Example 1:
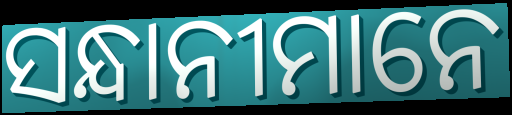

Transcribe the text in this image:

ସନ୍ଧାନୀମାନେ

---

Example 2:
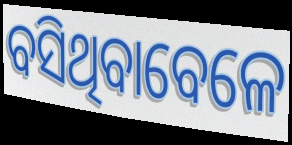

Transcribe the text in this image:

ବସିଥିବାବେଳେ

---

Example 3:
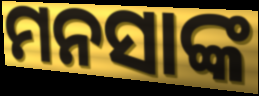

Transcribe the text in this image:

ମନସାଙ୍କ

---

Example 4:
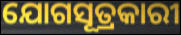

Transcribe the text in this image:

ଯୋଗସୂତ୍ରକାରୀ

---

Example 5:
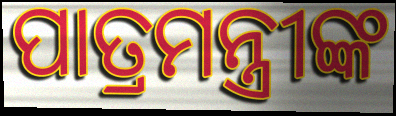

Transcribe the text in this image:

ପାତ୍ରମନ୍ତ୍ରୀଙ୍କ